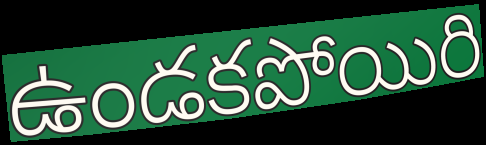
ఉండకపోయిరి